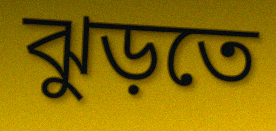
ঝুড়তে